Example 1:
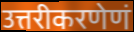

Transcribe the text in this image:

उत्तरीकरणेणं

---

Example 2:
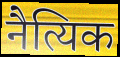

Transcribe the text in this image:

नैत्यिक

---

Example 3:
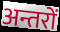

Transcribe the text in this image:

अन्तरों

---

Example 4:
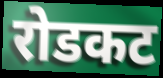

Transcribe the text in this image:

रोडकट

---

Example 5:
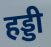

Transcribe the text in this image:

हड्डी